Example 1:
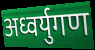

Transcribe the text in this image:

अध्वर्युगण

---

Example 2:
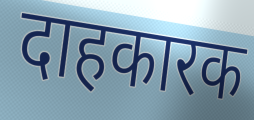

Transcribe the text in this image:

दाहकारक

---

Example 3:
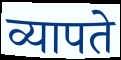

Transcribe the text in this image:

व्यापते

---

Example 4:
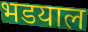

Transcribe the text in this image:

भडयाल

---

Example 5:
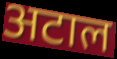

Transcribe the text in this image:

अटाल